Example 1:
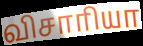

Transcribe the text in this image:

விசாரியா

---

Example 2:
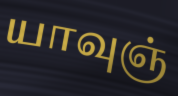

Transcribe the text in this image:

யாவுஞ்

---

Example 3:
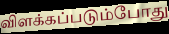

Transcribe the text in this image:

விளக்கப்படும்போது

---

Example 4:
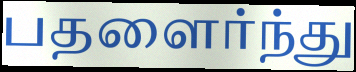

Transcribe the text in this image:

பதளைர்ந்து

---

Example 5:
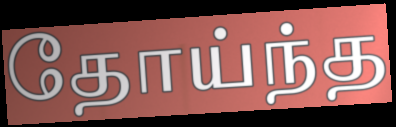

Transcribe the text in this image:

தோய்ந்த